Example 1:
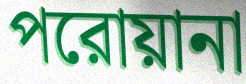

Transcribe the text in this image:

পরোয়ানা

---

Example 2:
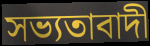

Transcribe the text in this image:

সভ্যতাবাদী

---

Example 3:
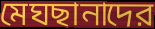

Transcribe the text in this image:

মেঘছানাদের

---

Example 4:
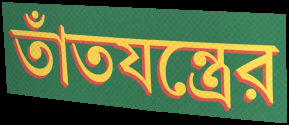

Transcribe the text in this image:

তাঁতযন্ত্রের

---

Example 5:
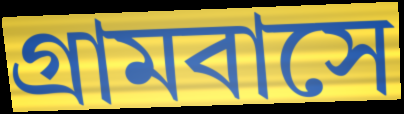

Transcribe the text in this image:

গ্রামবাসে